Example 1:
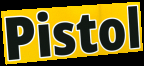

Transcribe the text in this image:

Pistol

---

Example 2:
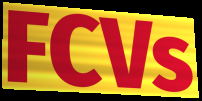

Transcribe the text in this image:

FCVs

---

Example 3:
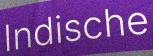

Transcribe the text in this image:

Indische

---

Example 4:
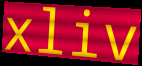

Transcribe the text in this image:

xliv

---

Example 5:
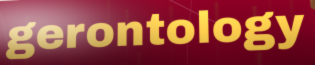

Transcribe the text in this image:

gerontology